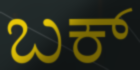
ಬಕ್